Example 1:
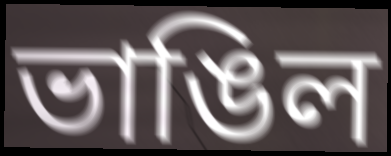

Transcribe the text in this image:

ভাঙিল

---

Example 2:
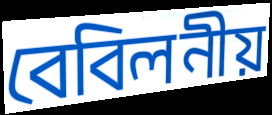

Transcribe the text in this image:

বেবিলনীয়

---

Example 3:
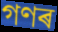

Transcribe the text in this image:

গণৰ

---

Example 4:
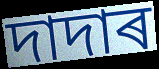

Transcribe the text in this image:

দাদাৰ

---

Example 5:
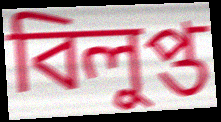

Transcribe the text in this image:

বিলুপ্ত